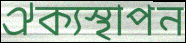
ঐক্যস্থাপন